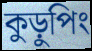
কুড়ুপিং